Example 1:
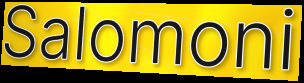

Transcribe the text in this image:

Salomoni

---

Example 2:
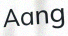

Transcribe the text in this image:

Aang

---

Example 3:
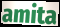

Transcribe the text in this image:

amita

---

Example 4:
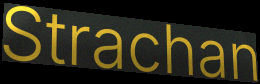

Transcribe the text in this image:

Strachan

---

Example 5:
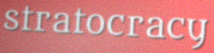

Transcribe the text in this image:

stratocracy